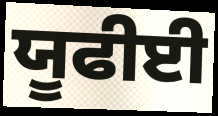
ਯੂਫੀਈ